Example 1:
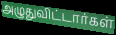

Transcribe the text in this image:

அழுதுவிட்டார்கள்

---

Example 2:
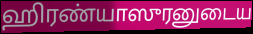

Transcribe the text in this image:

ஹிரண்யாஸுரனுடைய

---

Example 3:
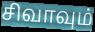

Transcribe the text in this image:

சிவாவும்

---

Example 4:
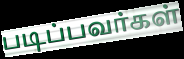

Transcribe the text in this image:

படிப்பவர்கள்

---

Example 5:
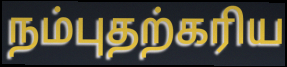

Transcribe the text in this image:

நம்புதற்கரிய